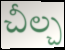
చీల్చ